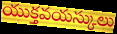
యుక్తవయస్కులు